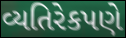
વ્યતિરેકપણે